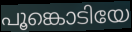
പൂങ്കൊടിയേ